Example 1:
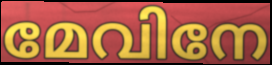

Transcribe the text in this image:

മേവിനേ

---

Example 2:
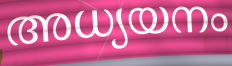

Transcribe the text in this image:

അധ്യയനം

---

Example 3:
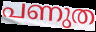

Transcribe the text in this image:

പണുത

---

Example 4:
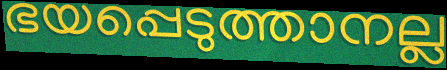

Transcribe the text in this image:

ഭയപ്പെടുത്താനല്ല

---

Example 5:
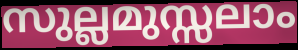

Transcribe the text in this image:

സുല്ലമുസ്സലാം